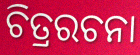
ଚିତ୍ରରଚନା